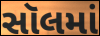
સૉલમાં